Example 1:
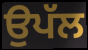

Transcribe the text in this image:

ਉਪੱਲ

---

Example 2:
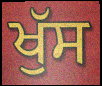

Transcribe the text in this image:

ਖੁੱਸ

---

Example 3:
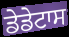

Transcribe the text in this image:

ਡੇਡੇਟਾਸ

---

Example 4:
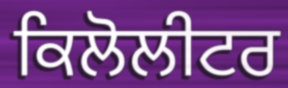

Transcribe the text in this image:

ਕਿਲੋਲੀਟਰ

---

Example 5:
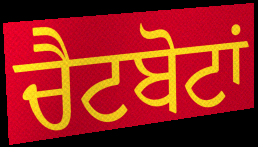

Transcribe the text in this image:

ਚੈਟਬੋਟਾਂ